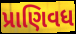
પ્રાણિવધ